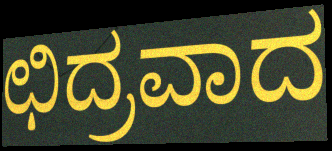
ಛಿದ್ರವಾದ